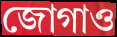
জোগাও